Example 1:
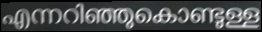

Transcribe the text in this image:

എന്നറിഞ്ഞുകൊണ്ടുള്ള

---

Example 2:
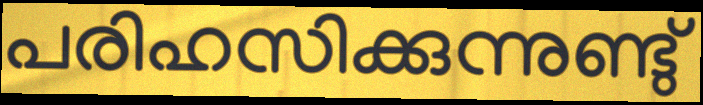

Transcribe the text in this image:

പരിഹസിക്കുന്നുണ്ടു്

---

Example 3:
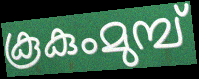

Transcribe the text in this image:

കൂകുംമുമ്പ്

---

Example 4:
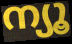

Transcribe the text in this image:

ന്യൂ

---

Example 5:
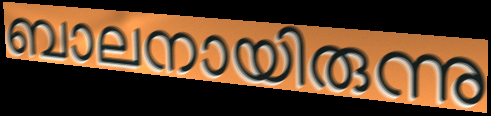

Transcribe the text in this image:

ബാലനായിരുന്നു